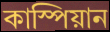
কাস্পিয়ান